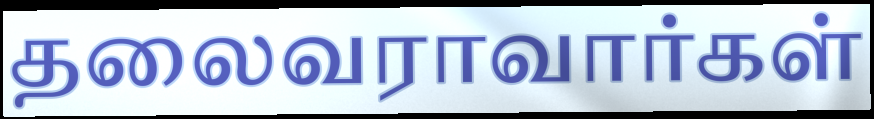
தலைவராவார்கள்